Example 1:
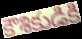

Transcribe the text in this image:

కౌశికుడికి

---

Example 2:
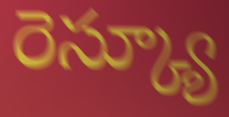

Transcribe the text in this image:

రెస్క్యూ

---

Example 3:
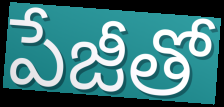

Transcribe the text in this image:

పేజీతో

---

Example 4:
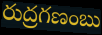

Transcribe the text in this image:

రుద్రగణంబు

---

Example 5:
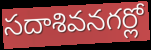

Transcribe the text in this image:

సదాశివనగర్లో